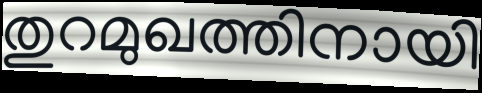
തുറമുഖത്തിനായി